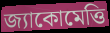
জ্যাকোমেত্তি